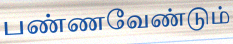
பண்ணவேண்டும்